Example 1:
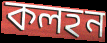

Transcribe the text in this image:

কলহন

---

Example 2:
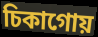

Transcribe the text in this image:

চিকাগোয়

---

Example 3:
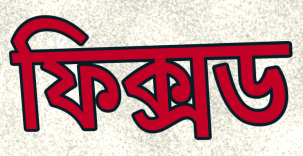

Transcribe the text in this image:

ফিক্সড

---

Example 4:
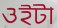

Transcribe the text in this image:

ওইটা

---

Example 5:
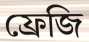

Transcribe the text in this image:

ফ্রেজি